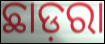
ଛାଡ଼ରା